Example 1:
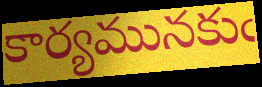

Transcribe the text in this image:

కార్యమునకుఁ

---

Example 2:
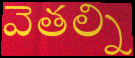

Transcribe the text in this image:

వెతల్ని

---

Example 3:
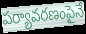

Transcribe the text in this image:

పర్యావరణంపైనే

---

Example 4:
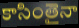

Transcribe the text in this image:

కాసింతైనా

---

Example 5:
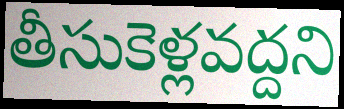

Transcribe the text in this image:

తీసుకెళ్లవద్దని